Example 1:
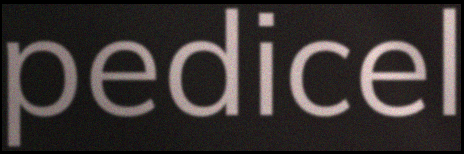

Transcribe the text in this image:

pedicel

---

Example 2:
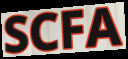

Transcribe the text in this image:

SCFA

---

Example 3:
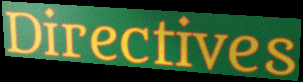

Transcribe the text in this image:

Directives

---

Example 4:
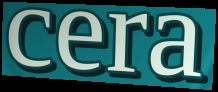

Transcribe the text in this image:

cera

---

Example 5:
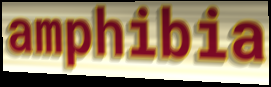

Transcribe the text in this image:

amphibia